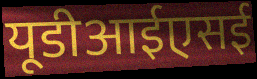
यूडीआईएसई